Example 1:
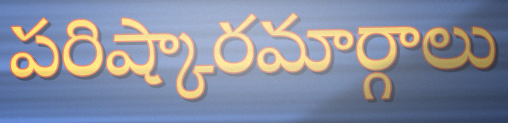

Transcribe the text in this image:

పరిష్కారమార్గాలు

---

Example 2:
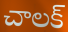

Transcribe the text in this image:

చాలక్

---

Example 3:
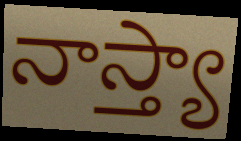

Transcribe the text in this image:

నాస్త్యా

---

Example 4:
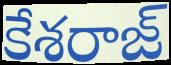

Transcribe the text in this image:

కేశరాజ్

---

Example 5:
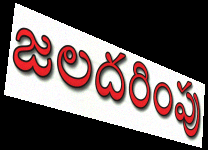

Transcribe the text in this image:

జలదరింపు